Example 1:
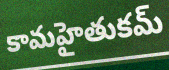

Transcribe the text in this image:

కామహైతుకమ్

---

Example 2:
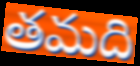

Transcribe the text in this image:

తమది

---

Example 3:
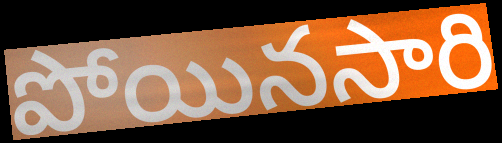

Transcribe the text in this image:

పోయినసారి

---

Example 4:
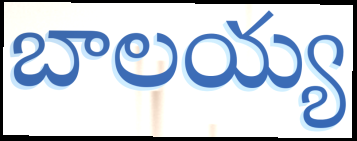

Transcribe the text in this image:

బాలయ్య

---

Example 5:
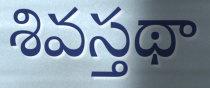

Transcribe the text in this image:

శివస్తథా